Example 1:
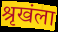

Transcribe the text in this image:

श्रृखंला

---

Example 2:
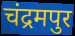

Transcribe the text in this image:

चंद्रमपुर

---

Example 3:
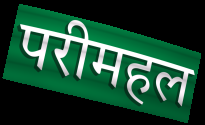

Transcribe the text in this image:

परीमहल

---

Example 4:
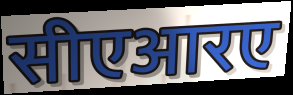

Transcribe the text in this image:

सीएआरए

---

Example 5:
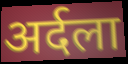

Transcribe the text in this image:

अर्दला